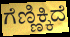
ಗೆಣ್ಣಿಕ್ಕಿದೆ